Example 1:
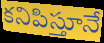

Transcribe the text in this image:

కనిపిస్తూనే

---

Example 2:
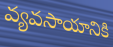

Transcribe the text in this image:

వ్యవసాయానికి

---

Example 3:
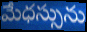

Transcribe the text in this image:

మేధస్సును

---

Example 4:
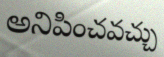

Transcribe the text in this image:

అనిపించవచ్చు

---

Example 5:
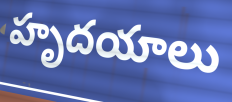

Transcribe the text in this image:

హృదయాలు